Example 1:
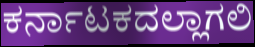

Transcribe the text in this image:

ಕರ್ನಾಟಕದಲ್ಲಾಗಲಿ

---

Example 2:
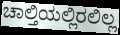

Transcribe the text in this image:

ಚಾಲ್ತಿಯಲ್ಲಿರಲಿಲ್ಲ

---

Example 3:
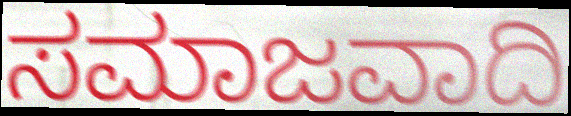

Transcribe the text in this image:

ಸಮಾಜವಾದಿ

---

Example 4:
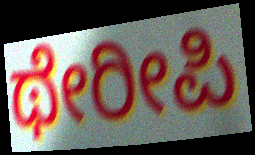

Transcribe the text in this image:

ಥೇರೀಪಿ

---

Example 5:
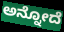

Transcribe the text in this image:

ಅನ್ನೋದೆ